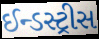
ઈન્ડસ્ટ્રીસ